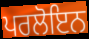
ਪਰਲੋਇਨ